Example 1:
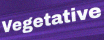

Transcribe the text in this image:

Vegetative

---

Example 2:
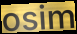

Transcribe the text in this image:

osim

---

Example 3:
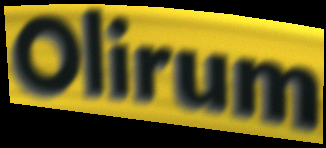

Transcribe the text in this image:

Olirum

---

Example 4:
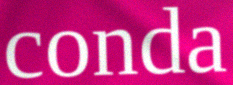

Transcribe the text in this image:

conda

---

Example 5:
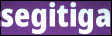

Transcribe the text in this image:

segitiga